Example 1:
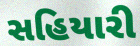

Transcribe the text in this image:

સહિયારી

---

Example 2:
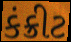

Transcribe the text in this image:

કંક્રીટ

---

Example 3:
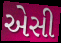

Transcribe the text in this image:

એસી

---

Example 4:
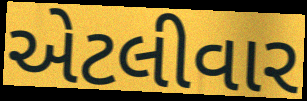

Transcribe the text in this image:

એટલીવાર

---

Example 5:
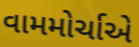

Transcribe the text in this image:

વામમોર્ચાએ